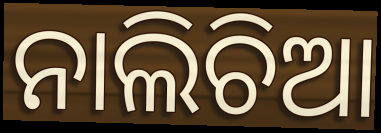
ନାଲିଚିଆ